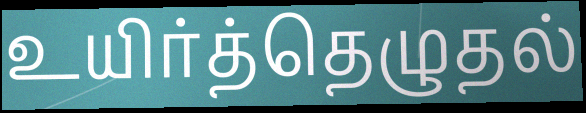
உயிர்த்தெழுதல்